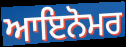
ਆਇਨੋਮਰ